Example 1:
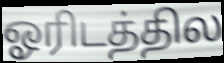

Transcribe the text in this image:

ஓரிடத்தில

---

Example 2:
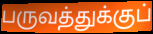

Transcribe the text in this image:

பருவத்துக்குப்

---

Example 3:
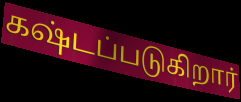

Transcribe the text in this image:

கஷ்டப்படுகிறார்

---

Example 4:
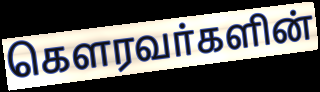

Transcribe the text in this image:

கௌரவர்களின்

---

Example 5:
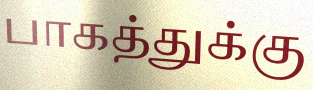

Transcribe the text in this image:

பாகத்துக்கு